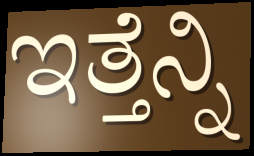
ಇತ್ತೆನ್ನಿ